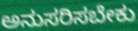
ಅನುಸರಿಸಬೇಕು